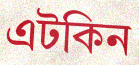
এটকিন